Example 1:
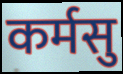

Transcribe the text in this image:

कर्मसु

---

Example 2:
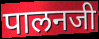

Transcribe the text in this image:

पालनजी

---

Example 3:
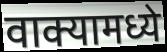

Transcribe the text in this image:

वाक्यामध्ये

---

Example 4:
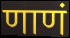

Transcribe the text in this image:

णाणं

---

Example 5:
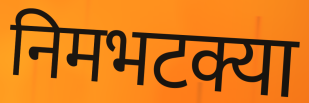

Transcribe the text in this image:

निमभटक्या